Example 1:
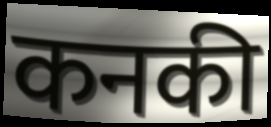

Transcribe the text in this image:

कनकी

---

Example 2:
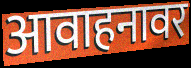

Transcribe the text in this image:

आवाहनावर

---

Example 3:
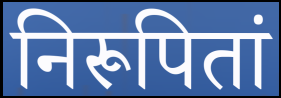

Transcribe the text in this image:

निरूपितां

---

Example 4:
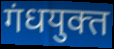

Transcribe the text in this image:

गंधयुक्‍त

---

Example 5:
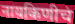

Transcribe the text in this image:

नायकिणीचं